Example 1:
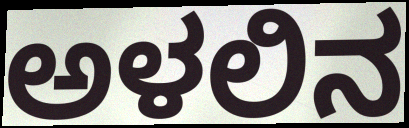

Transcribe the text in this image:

ಅಳಲಿನ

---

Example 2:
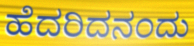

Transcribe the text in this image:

ಹೆದರಿದನಂದು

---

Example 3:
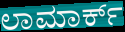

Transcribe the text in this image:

ಲಾಮಾರ್ಕ್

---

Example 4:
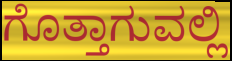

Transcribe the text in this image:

ಗೊತ್ತಾಗುವಲ್ಲಿ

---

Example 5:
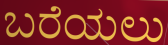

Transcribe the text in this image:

ಬರೆಯಲು